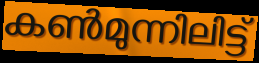
കൺമുന്നിലിട്ട്